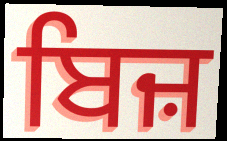
ਬਿਜ਼